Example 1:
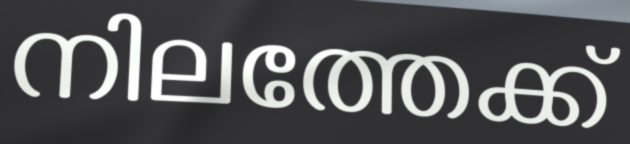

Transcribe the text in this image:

നിലത്തേക്ക്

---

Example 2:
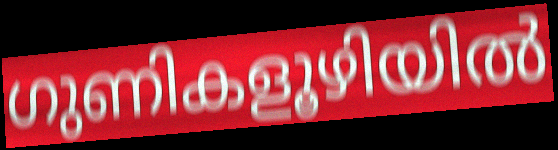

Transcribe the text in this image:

ഗുണികളൂഴിയിൽ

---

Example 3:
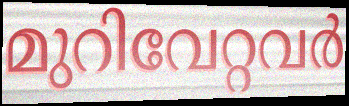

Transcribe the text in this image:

മുറിവേറ്റവർ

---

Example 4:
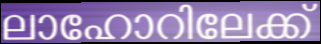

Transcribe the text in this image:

ലാഹോറിലേക്ക്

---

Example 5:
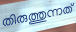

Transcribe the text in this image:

തിരുത്തുന്നത്